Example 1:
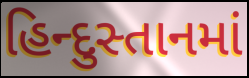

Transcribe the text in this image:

હિન્દુસ્તાનમાં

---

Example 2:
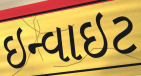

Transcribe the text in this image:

ઇન્વાઇટ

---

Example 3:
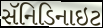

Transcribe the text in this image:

સૅનિડિનાઇટ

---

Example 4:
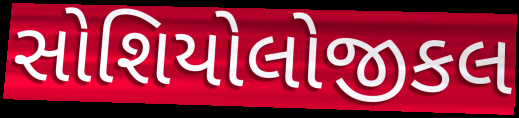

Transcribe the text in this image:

સોશિયોલોજીકલ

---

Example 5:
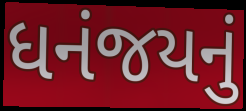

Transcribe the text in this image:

ધનંજયનું